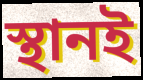
স্থানই